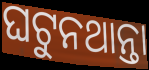
ଘଟୁନଥାନ୍ତା